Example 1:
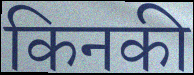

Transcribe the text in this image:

किनकी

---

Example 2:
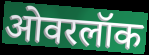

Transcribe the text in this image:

ओवरलॉक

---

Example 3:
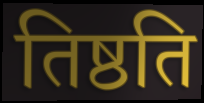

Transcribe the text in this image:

तिष्ठति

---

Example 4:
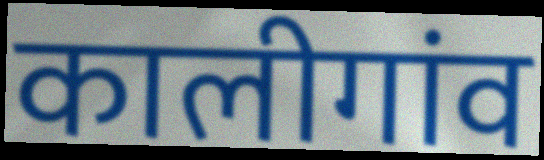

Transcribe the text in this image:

कालीगांव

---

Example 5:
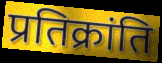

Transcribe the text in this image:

प्रतिक्रांति